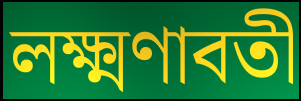
লক্ষ্মণাবতী